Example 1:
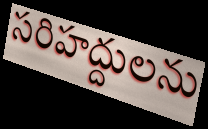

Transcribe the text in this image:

సరిహద్దులను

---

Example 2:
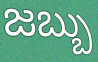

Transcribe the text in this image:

జబ్బు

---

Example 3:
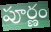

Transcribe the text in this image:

పూర్ణం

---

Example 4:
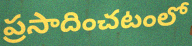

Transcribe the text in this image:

ప్రసాదించటంలో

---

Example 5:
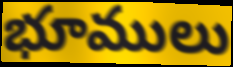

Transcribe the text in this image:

భూములు